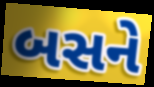
બસને